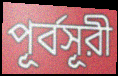
পূর্বসূরী